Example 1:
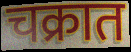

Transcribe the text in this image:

चक्रात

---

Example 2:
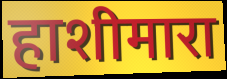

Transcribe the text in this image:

हाशीमारा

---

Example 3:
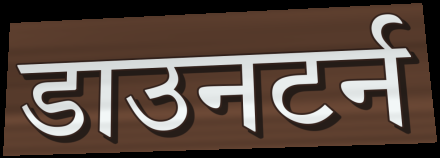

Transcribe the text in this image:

डाउनटर्न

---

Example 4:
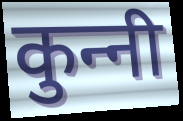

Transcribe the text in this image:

कुन्नी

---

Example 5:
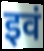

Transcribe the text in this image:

इवं